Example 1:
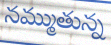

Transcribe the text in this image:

నమ్ముతున్న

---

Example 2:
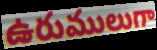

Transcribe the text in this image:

ఉరుములుగా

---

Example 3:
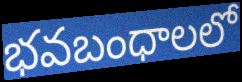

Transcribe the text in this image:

భవబంధాలలో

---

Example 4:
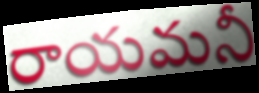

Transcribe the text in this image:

రాయమనీ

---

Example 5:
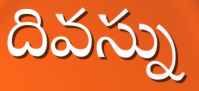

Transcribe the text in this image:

దివస్ను